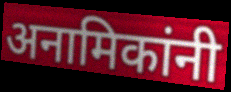
अनामिकांनी